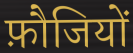
फ़ौजियों